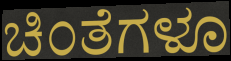
ಚಿಂತೆಗಳೂ